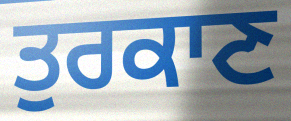
ਤੁਰਕਾਣ